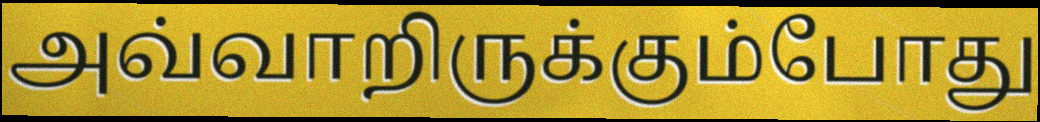
அவ்வாறிருக்கும்போது